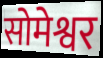
सोमेश्वर